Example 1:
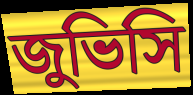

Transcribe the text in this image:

জুভিসি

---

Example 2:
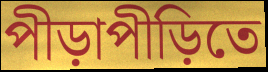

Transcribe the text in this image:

পীড়াপীড়িতে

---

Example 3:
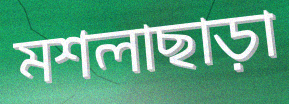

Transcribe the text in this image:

মশলাছাড়া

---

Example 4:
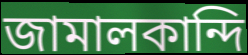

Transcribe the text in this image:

জামালকান্দি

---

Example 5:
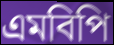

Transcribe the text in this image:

এমবিপি